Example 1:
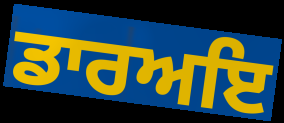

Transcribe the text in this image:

ਡਾਰਅਇ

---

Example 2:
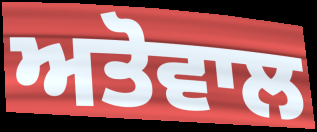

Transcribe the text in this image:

ਅਤੋਵਾਲ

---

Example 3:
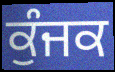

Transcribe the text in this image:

ਕੁੰਜਕ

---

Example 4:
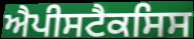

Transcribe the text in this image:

ਐਪੀਸਟੈਕਸਿਸ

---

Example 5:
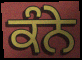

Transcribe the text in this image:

ਕੰਨੇ